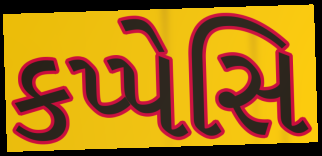
કપ્પેસિ